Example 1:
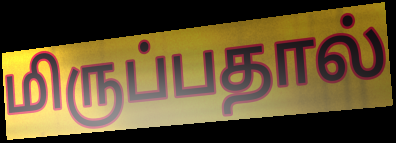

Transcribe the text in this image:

மிருப்பதால்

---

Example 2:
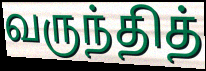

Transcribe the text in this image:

வருந்தித்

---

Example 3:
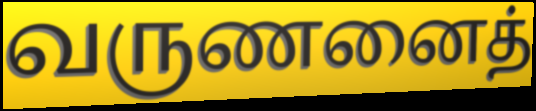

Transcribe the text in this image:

வருணனைத்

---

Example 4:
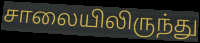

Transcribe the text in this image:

சாலையிலிருந்து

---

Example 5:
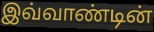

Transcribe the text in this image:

இவ்வாண்டின்